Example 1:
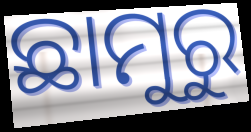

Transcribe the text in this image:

ଛାମୁରୁ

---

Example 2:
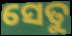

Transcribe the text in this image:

ସେତୁ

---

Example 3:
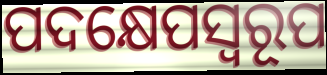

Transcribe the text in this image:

ପଦକ୍ଷେପସ୍ୱରୂପ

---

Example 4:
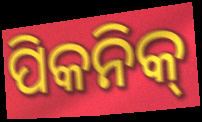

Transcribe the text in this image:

ପିକନିକ୍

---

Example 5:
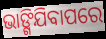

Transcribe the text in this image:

ଭାଙ୍ଗିଯିବାପରେ